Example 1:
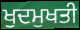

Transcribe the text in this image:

ਖੁਦਮੁਖਤੀ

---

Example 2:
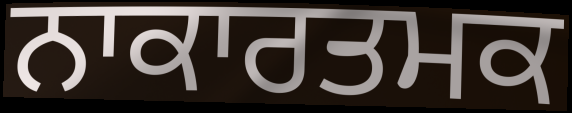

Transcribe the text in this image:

ਨਾਕਾਰਤਮਕ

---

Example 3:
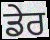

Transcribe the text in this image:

ਡੇਰ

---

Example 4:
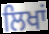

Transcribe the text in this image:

ਲਿਖਾਂ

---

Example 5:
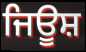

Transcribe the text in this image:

ਜਿਊਸ਼